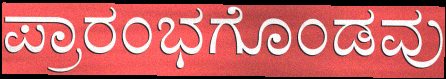
ಪ್ರಾರಂಭಗೊಂಡವು